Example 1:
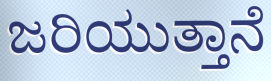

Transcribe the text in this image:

ಜರಿಯುತ್ತಾನೆ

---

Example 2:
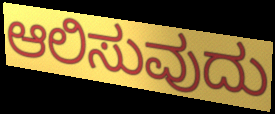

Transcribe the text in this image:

ಆಲಿಸುವುದು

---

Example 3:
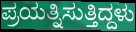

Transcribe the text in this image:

ಪ್ರಯತ್ನಿಸುತ್ತಿದ್ದಳು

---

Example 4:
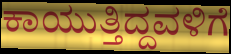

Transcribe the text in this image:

ಕಾಯುತ್ತಿದ್ದವಳಿಗೆ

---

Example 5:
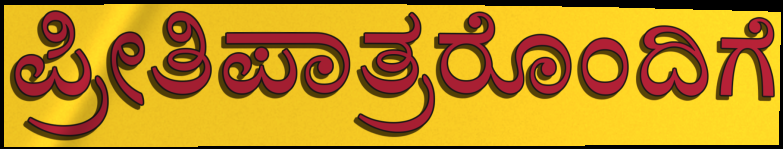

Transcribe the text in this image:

ಪ್ರೀತಿಪಾತ್ರರೊಂದಿಗೆ